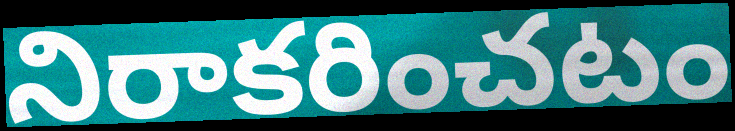
నిరాకరించటం